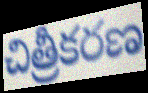
చిత్రీకరణ